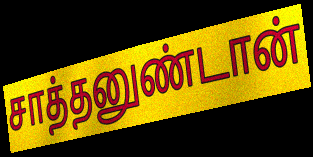
சாத்தனுண்டான்